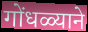
गोंधळ्याने